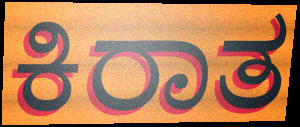
ಕಿರಾತ